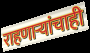
राहणाऱ्यांचाही